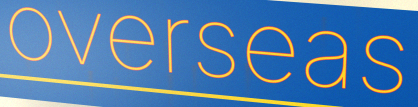
overseas